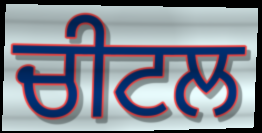
ਚੀਟਲ